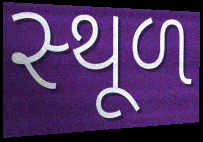
સ્‍થૂળ